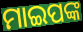
ମାଇପଙ୍କ